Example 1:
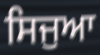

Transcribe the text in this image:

ਸਿਜੁਆ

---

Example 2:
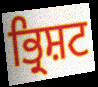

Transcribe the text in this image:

ਭ੍ਰਿਸ਼ਟ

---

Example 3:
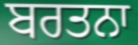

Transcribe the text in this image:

ਬਰਤਨਾ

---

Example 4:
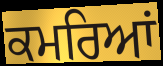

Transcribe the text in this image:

ਕਮਰਿਆਂ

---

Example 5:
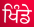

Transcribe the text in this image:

ਖਿੰਡੇ